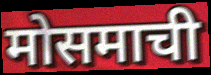
मोसमाची